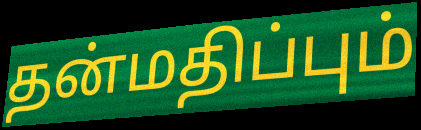
தன்மதிப்பும்